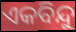
ଏକବିନ୍ଦୁ